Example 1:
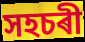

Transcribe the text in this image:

সহচৰী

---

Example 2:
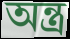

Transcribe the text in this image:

অন্ত্ৰ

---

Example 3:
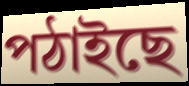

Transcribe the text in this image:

পঠাইছে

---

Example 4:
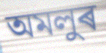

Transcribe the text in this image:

অমলুৰ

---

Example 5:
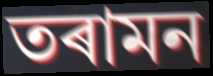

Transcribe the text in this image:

তৰামন